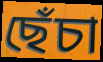
ছেঁচা